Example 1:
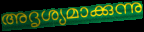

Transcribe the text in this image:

അദൃശ്യമാക്കുന്നു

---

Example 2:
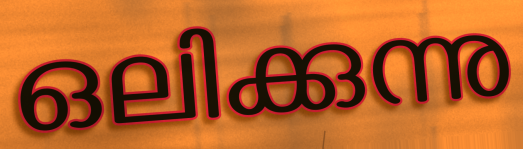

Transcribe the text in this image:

ഒലിക്കുന്നു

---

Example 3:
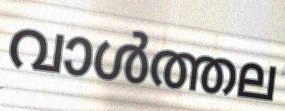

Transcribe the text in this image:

വാൾത്തല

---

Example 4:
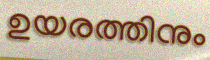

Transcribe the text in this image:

ഉയരത്തിനും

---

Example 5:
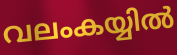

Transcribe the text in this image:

വലംകയ്യിൽ